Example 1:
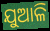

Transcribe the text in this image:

ଯୁଆଳି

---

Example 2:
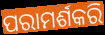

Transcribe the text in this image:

ପରାମର୍ଶକରି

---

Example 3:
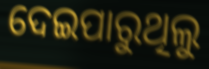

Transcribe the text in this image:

ଦେଇପାରୁଥିଲୁ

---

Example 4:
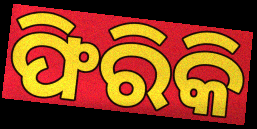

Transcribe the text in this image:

ଫିରିକି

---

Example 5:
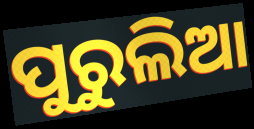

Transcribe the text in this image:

ପୁରୁଲିଆ